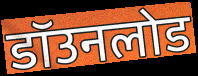
डॉउनलोड